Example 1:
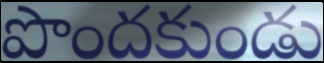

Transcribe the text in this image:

పొందకుండు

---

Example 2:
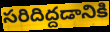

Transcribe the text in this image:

సరిదిద్దడానికి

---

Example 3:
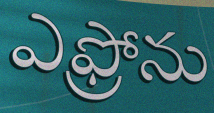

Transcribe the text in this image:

ఎఫ్రోను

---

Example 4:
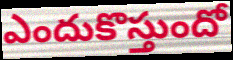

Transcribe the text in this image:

ఎందుకొస్తుందో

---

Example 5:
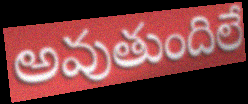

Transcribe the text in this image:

అవుతుందిలే